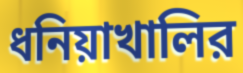
ধনিয়াখালির